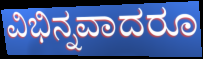
ವಿಭಿನ್ನವಾದರೂ